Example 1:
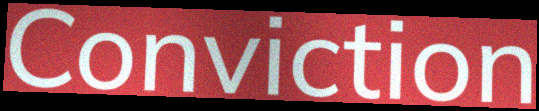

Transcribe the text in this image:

Conviction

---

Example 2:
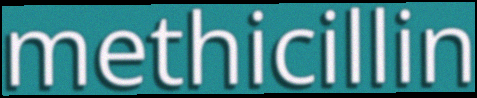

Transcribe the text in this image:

methicillin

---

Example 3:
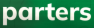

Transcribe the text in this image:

parters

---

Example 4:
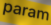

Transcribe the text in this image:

param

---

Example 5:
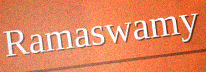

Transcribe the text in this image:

Ramaswamy